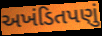
અખંડિતપણું